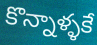
కొన్నాళ్ళకే